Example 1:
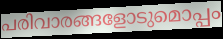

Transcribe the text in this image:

പരിവാരങ്ങളോടുമൊപ്പം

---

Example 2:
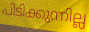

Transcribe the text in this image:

പിടിക്കുന്നില്ല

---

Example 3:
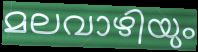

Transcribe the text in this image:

മലവാഴിയും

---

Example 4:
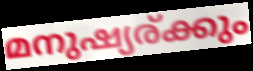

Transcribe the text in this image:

മനുഷ്യര്ക്കും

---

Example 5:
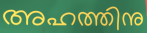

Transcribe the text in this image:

അഹത്തിനു